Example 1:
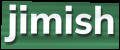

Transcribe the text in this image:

jimish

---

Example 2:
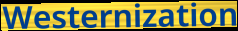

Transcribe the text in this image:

Westernization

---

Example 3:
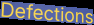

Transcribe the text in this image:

Defections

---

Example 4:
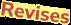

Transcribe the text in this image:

Revises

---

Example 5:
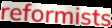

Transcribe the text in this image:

reformists